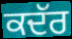
ਕਦੱਰ